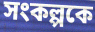
সংকল্পকে